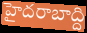
హైదరాబాద్ది